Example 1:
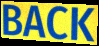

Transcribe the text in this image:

BACK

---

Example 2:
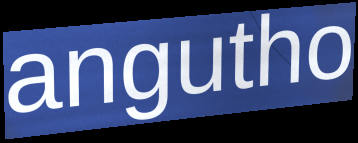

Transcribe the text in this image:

angutho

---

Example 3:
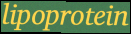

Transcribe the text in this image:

lipoprotein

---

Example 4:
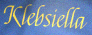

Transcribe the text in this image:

Klebsiella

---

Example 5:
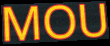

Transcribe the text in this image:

MOU